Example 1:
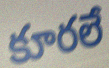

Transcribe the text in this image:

కూరలే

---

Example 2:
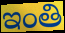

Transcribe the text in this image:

ఇంతి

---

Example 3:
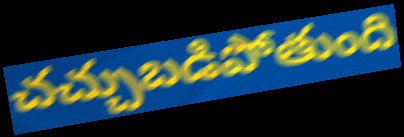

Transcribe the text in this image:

చచ్చుబడిపోతుంది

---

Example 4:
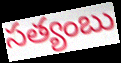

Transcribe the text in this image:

సత్యంబు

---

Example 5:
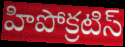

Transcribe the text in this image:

హిపోక్రటిస్